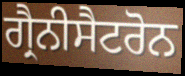
ਗ੍ਰੈਨੀਸੈਟਰੋਨ